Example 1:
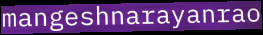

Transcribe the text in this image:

mangeshnarayanrao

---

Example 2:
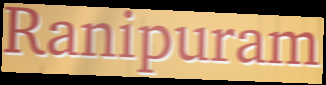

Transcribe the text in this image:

Ranipuram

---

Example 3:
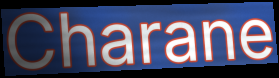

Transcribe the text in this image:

Charane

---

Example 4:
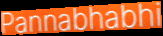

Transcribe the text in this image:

Pannabhabhi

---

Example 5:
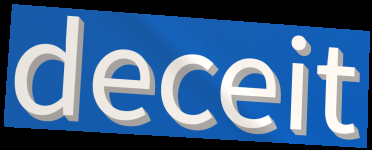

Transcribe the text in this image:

deceit